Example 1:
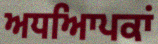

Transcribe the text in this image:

ਅਧਆਿਪਕਾਂ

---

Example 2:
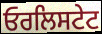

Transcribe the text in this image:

ਓਰਲਿਸਟੇਟ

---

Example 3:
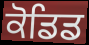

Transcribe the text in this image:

ਕੋਡਿਡ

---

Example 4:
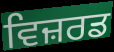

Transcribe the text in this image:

ਵਿਜ਼ਰਡ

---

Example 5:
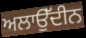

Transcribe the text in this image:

ਅਲਾਉੱਦੀਨ